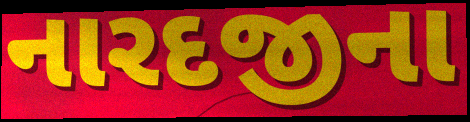
નારદજીના